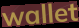
wallet